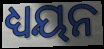
ଧ୍ୟୟନ